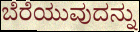
ಬೆರೆಯುವುದನ್ನು